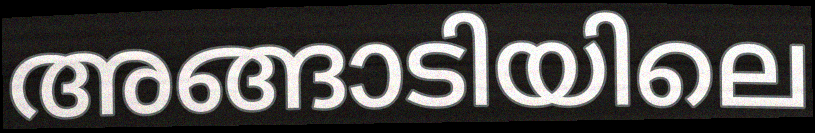
അങ്ങാടിയിലെ